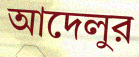
আদেলুর